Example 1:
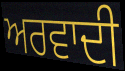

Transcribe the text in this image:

ਅਰਵਾਦੀ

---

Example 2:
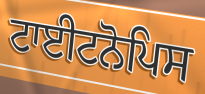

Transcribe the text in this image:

ਟਾਈਟਨੋਪਿਸ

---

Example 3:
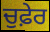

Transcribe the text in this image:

ਚੁਫ਼ੇਰ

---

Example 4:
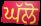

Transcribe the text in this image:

ਘੱਲੋ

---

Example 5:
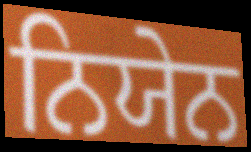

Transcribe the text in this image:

ਨਿਯੇਨ